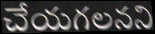
చేయగలనని